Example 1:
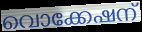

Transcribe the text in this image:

വൊക്കേഷന്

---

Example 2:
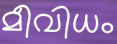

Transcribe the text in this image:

മീവിധം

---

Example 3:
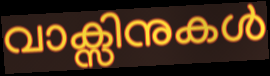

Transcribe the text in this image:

വാക്സിനുകൾ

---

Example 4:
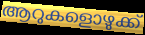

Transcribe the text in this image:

ആറുകളൊഴുക്ക്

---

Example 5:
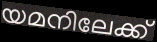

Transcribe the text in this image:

യമനിലേക്ക്